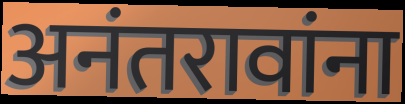
अनंतरावांना